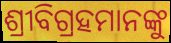
ଶ୍ରୀବିଗ୍ରହମାନଙ୍କୁ